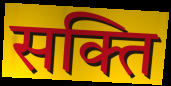
सक्ति